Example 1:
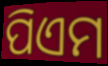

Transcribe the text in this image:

ପିଏମ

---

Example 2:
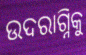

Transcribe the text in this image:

ଉଦରାଗ୍ନିକୁ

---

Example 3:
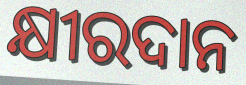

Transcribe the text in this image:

କ୍ଷୀରଦାନ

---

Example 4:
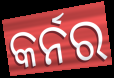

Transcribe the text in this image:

କର୍ନର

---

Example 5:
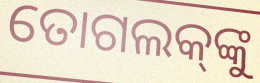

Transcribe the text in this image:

ତୋଗଲକ୍‌ଙ୍କୁ